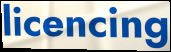
licencing